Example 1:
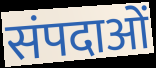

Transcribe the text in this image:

संपदाओं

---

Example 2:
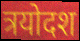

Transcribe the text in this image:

त्रयोदश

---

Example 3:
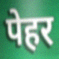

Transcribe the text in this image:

पेहर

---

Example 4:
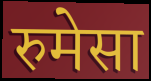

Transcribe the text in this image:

रुमेसा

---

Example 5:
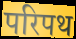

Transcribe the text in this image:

परिपथ